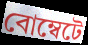
বোম্বেটে